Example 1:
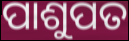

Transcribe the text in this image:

ପାଶୁପତ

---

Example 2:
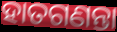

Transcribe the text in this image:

ହାତଗଣନ୍ତା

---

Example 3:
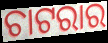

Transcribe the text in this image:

ଚାଟରାର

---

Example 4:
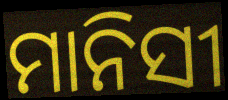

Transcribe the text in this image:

ମାନିସୀ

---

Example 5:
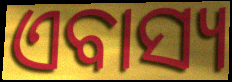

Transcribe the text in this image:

ଏବାସ୍ୟ